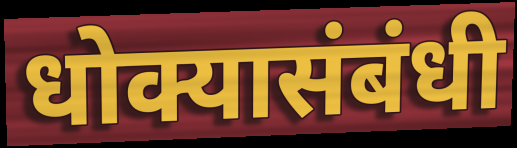
धोक्यासंबंधी